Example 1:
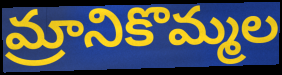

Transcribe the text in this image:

మ్రానికొమ్మల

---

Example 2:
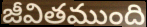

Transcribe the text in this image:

జీవితముంది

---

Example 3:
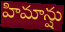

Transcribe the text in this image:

హిమాన్షు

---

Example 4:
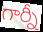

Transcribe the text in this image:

గార్నీ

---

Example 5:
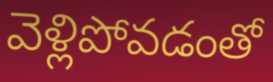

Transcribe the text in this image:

వెళ్లిపోవడంతో